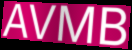
AVMB